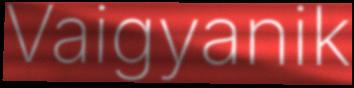
Vaigyanik